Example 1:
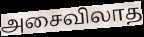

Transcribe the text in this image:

அசைவிலாத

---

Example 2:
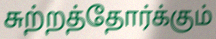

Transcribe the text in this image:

சுற்றத்தோர்க்கும்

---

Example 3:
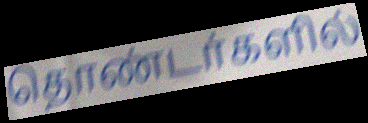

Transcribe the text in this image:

தொண்டர்களில்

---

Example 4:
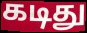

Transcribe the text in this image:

கடிது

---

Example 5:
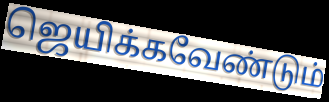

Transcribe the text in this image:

ஜெயிக்கவேண்டும்